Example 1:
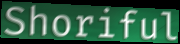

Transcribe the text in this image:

Shoriful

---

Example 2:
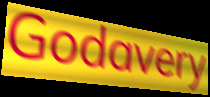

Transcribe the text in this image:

Godavery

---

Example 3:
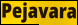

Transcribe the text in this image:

Pejavara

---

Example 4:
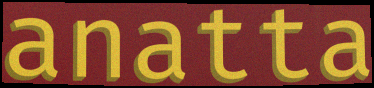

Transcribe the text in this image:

anatta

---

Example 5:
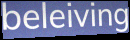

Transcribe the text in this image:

beleiving